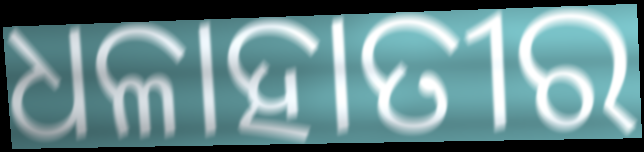
ଧଳାହାତୀର